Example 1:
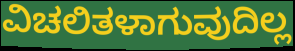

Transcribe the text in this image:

ವಿಚಲಿತಳಾಗುವುದಿಲ್ಲ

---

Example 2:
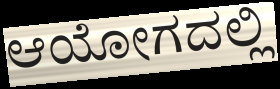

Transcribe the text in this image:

ಆಯೋಗದಲ್ಲಿ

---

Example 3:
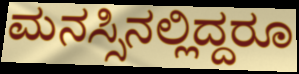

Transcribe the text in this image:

ಮನಸ್ಸಿನಲ್ಲಿದ್ದರೂ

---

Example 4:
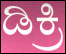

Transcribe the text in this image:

ಡಿಕ್ರಿ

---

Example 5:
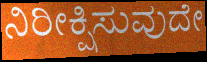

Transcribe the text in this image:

ನಿರೀಕ್ಷಿಸುವುದೇ